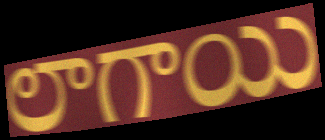
లాగాయి